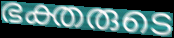
ഭക്തരുടെ